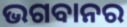
ଭଗବାନର